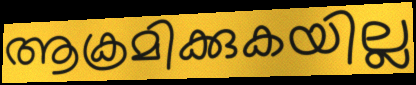
ആക്രമിക്കുകയില്ല